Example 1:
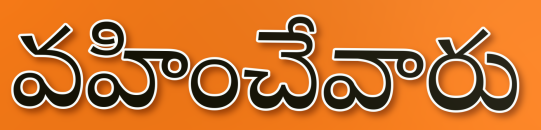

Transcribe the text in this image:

వహించేవారు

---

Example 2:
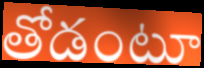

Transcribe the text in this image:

తోడంటూ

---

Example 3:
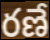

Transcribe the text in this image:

రణే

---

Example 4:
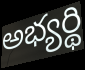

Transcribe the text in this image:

అభ్యర్థి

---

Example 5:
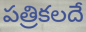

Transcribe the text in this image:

పత్రికలదే